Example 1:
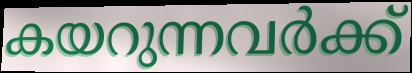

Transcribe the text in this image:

കയറുന്നവർക്ക്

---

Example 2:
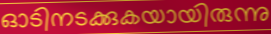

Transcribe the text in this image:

ഓടിനടക്കുകയായിരുന്നു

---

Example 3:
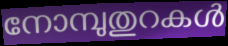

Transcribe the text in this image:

നോമ്പുതുറകൾ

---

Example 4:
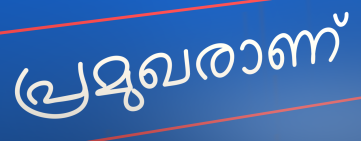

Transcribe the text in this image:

പ്രമുഖരാണ്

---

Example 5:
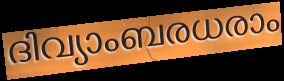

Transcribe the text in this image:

ദിവ്യാംബരധരാം